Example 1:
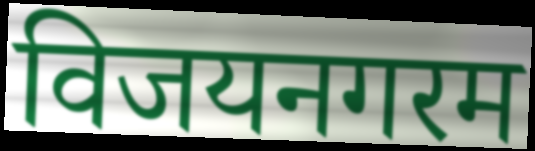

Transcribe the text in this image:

विजयनगरम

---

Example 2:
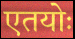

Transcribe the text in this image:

एतयोः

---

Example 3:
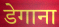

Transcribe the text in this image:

डेगाना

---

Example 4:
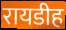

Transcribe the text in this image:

रायडीह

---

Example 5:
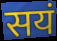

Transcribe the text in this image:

सयं